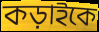
কড়াইকে